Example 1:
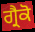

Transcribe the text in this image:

ਗ੍ਰੈਕੋ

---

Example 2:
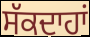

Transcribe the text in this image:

ਸੱਕਦਾਹਾਂ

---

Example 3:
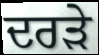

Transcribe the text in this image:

ਦਰੜੇ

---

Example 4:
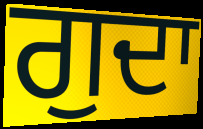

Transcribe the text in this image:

ਗੁਦਾ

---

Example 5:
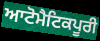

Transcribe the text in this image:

ਆਟੋਮੈਟਿਕਪੂਰੀ